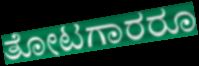
ತೋಟಗಾರರೂ